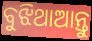
ବୁଝିଥାଆନ୍ତୁ